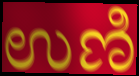
ಉಣಿ